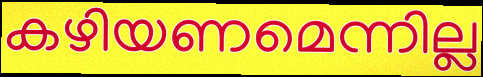
കഴിയണമെന്നില്ല